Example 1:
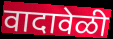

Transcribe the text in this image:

वादावेळी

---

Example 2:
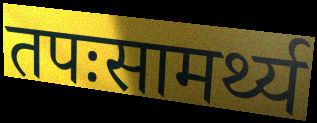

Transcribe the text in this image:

तपःसामर्थ्य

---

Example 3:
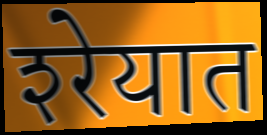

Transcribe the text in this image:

श्रेयात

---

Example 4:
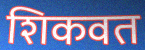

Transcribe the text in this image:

शिकवत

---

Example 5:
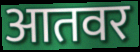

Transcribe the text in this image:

आतवर